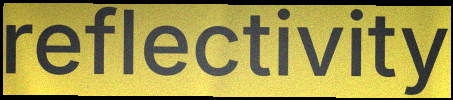
reflectivity